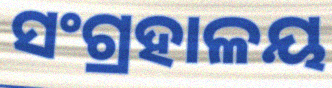
ସଂଗ୍ରହାଳୟ